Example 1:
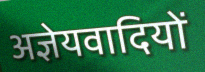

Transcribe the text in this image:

अज्ञेयवादियों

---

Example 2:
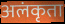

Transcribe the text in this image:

अलंकृता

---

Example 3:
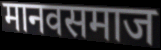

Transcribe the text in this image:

मानवसमाज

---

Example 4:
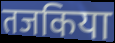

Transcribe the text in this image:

तजकिया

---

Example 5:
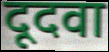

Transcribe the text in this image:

दूदवा